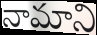
నామాని